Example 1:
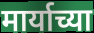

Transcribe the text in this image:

मार्याच्या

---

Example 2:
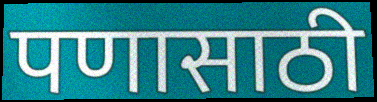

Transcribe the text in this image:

पणासाठी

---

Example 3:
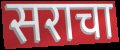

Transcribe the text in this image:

सराचा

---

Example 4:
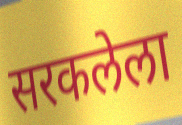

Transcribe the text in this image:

सरकलेला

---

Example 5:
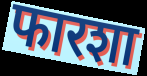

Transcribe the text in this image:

फारशा